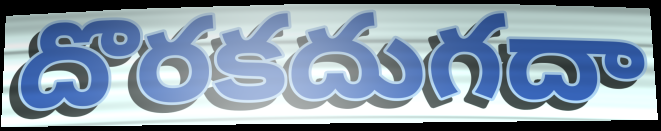
దొరకదుగదా